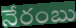
నేరంబు